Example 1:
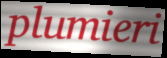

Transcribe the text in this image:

plumieri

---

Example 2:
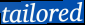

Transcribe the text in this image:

tailored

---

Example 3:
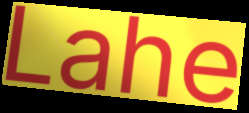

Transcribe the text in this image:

Lahe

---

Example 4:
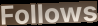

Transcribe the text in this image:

Follows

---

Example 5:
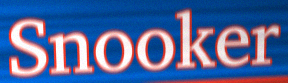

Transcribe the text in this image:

Snooker